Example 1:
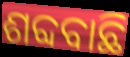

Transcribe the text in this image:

ଶବ୍ଦବାଛି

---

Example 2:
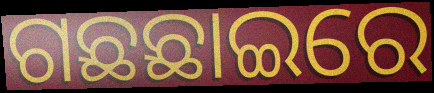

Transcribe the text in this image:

ଗଛଛାଇରେ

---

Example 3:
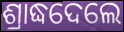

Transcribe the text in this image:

ଶ୍ରାଦ୍ଧଦେଲେ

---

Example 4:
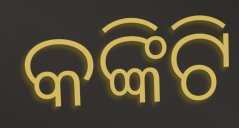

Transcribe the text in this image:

କଙ୍କିଟି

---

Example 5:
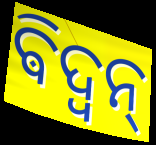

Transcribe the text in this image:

ଵିଦ୍ଵନ୍